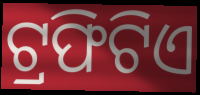
ଟ୍ରଫିଟିଏ